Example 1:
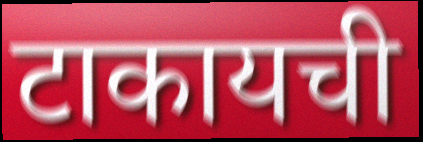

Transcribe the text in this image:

टाकायची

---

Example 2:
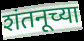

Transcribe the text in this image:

शंतनूच्या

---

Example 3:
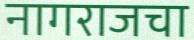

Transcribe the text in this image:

नागराजचा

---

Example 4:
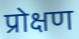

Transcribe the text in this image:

प्रोक्षण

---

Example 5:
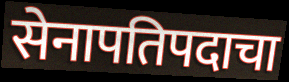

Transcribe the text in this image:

सेनापतिपदाचा